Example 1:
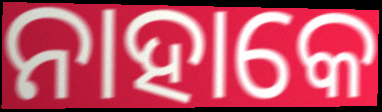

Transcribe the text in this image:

ନାହାକେ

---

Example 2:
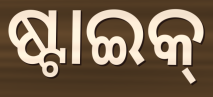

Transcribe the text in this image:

ଷ୍ଟାଇକ୍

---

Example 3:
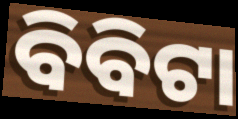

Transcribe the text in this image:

ବିବିଟା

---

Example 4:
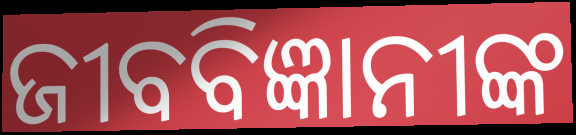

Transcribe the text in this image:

ଜୀବବିଜ୍ଞାନୀଙ୍କ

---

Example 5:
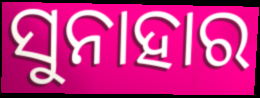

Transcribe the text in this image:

ସୁନାହାର